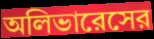
অলিভারেসের